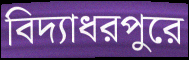
বিদ্যাধরপুরে